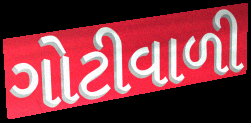
ગોટીવાળી